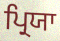
ਪ੍ਰਿਯਾ